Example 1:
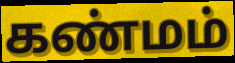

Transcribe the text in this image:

கண்மம்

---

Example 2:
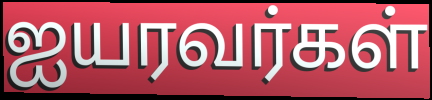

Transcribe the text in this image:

ஐயரவர்கள்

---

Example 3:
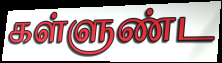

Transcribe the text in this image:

கள்ளுண்ட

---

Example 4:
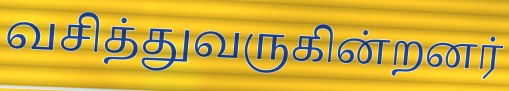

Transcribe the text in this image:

வசித்துவருகின்றனர்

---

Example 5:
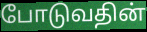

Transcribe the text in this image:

போடுவதின்